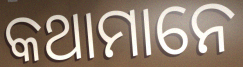
କଥାମାନେ